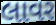
લાવર